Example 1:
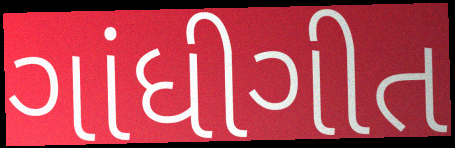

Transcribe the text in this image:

ગાંધીગીત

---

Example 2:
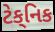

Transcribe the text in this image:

ટેક્‌નિક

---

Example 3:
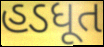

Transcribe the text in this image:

હડધૂત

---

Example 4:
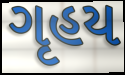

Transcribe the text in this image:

ગૃહય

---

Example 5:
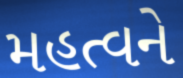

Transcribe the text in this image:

મહત્વને